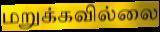
மறுக்கவில்லை